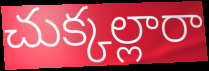
చుక్కల్లారా